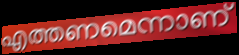
എത്തണമെന്നാണ്